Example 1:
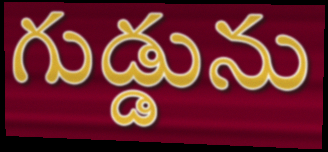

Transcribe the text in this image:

గుడ్డును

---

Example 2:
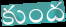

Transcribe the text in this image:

కుంద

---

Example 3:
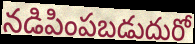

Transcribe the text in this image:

నడిపింపబడుదురో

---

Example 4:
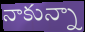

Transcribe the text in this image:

నాకున్నా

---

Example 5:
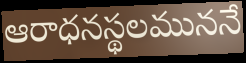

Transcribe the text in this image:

ఆరాధనస్థలముననే